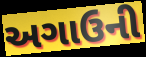
અગાઉની